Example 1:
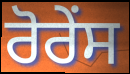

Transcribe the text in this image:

ਰੋਰੇਂਸ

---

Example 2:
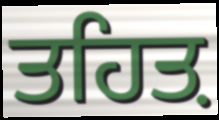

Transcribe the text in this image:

ਤਹਿਤ਼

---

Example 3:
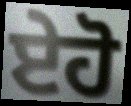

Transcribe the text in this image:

ਏਹੋ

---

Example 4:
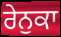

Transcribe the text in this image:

ਰੇਨੁਕਾ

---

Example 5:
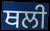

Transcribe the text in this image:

ਥਲੀ